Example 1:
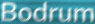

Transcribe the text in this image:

Bodrum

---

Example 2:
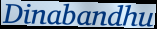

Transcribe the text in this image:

Dinabandhu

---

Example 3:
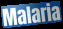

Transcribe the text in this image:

Malaria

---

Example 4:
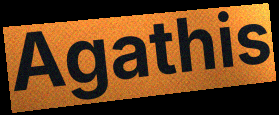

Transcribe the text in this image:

Agathis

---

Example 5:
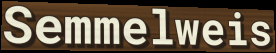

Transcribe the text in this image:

Semmelweis